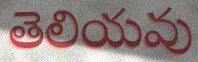
తెలియవు